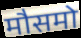
मौसमो